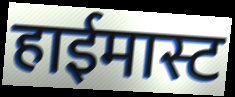
हाईमास्ट